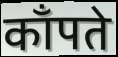
काँपते